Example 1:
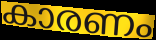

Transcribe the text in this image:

കാരണം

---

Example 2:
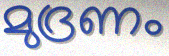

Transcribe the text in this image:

മുദ്രണം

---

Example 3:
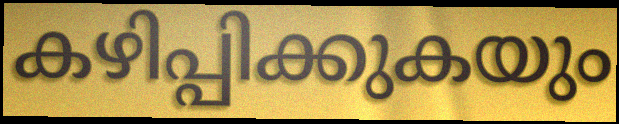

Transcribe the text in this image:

കഴിപ്പിക്കുകയും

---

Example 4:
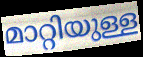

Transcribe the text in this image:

മാറ്റിയുള്ള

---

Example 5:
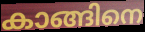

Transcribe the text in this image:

കാങ്ങിനെ